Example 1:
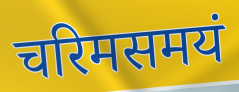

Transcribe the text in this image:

चरिमसमयं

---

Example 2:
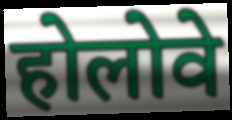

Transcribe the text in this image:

होलोवे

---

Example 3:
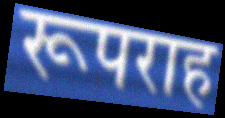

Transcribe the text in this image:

रूपराह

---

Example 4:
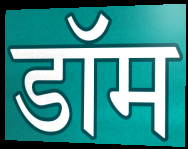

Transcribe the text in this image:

डॉम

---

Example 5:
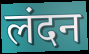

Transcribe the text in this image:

लंदन